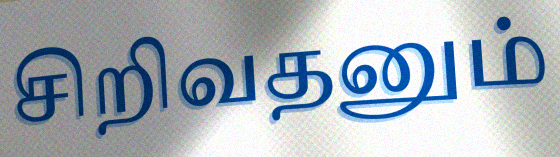
சிறிவதனும்